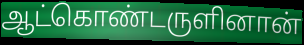
ஆட்கொண்டருளினான்